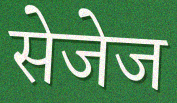
सेजेज